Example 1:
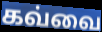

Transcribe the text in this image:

கவ்வை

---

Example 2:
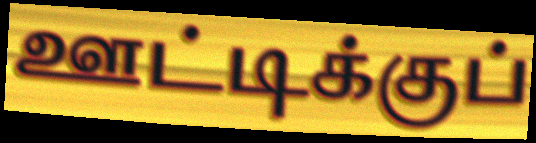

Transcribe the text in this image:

ஊட்டிக்குப்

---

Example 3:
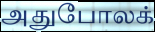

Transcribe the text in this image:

அதுபோலக்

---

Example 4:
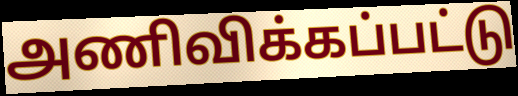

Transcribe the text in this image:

அணிவிக்கப்பட்டு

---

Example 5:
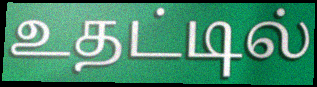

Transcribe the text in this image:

உதட்டில்